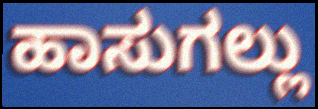
ಹಾಸುಗಲ್ಲು